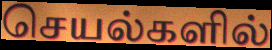
செயல்களில்